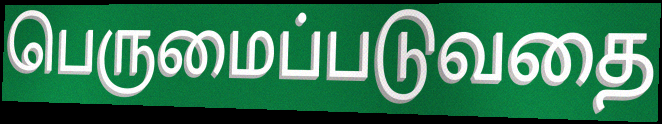
பெருமைப்படுவதை